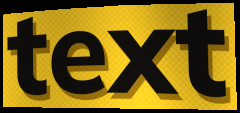
text